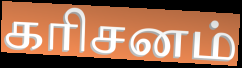
கரிசனம்